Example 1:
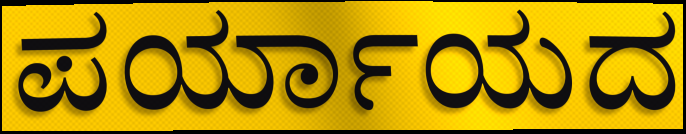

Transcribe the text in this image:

ಪರ್ಯಾಯದ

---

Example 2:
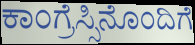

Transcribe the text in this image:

ಕಾಂಗ್ರೆಸ್ಸಿನೊಂದಿಗೆ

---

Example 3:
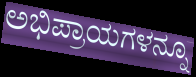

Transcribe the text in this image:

ಅಭಿಪ್ರಾಯಗಳನ್ನೂ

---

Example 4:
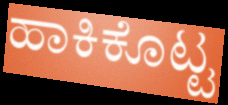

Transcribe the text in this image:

ಹಾಕಿಕೊಟ್ಟ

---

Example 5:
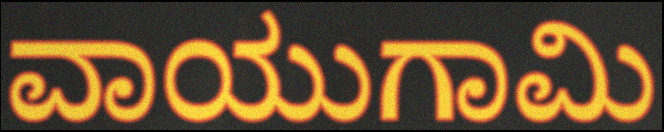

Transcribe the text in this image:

ವಾಯುಗಾಮಿ